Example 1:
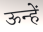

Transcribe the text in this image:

ऊन्हें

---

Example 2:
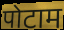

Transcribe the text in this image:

पोटाम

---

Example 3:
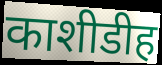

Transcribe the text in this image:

काशीडीह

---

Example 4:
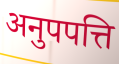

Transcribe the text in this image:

अनुपपत्ति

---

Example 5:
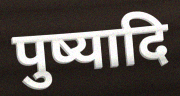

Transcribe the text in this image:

पुष्यादि